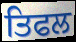
ਤਿਫਲ